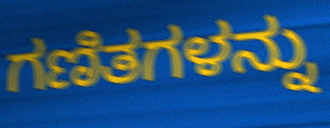
ಗಣಿತಗಳನ್ನು